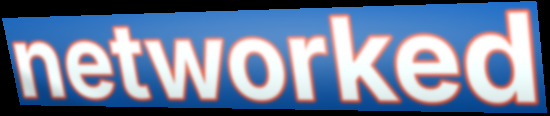
networked